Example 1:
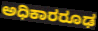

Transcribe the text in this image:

ಅಧಿಕಾರರೂಢ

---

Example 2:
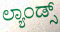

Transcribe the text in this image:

ಲ್ಯಾಂಡ್ಸ್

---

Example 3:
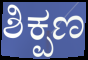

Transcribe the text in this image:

ಶಿಕ್ಪಣ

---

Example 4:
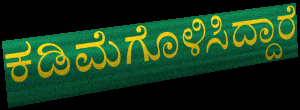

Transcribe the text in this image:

ಕಡಿಮೆಗೊಳಿಸಿದ್ದಾರೆ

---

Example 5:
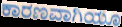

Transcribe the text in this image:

ಕಾರಣವಾಗಿಯೂ